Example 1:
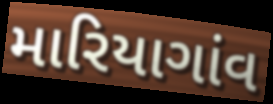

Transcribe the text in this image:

મારિયાગાંવ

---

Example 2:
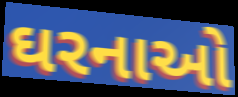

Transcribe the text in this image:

ઘરનાઓ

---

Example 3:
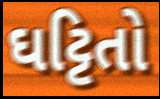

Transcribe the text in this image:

ઘટ્ટિતો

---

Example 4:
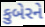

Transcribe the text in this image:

કુબેરને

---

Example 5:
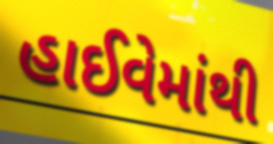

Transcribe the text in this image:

હાઈવેમાંથી